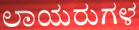
ಲಾಯರುಗಳ